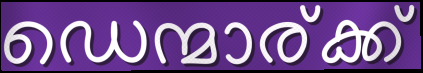
ഡെന്മാര്ക്ക്